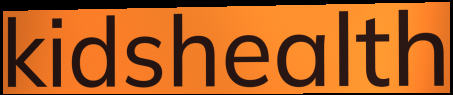
kidshealth